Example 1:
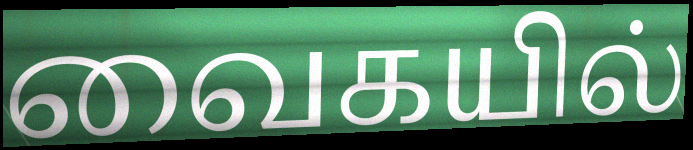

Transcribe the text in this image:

வைகயில்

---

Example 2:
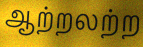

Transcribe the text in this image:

ஆற்றலற்ற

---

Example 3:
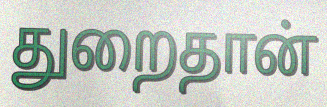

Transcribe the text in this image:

துறைதான்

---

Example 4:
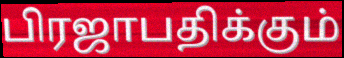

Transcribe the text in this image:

பிரஜாபதிக்கும்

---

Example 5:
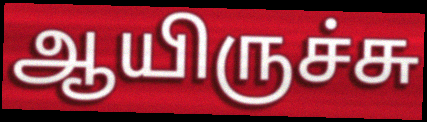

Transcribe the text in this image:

ஆயிருச்சு